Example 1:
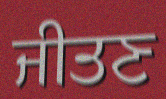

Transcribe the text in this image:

ਜੀਤਣ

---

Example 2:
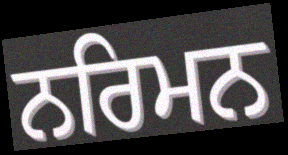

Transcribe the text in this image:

ਨਰਿਮਨ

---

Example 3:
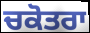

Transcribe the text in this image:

ਚਕੋਤਰਾ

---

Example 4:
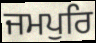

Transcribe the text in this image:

ਜਮਪੁਰਿ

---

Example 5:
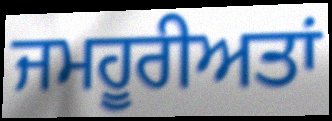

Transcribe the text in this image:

ਜਮਹੂਰੀਅਤਾਂ